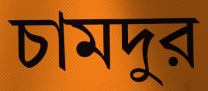
চামদুর